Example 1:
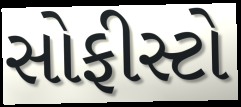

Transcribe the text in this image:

સોફીસ્ટો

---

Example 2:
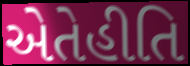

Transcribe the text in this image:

એતેહીતિ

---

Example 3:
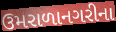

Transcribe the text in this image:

ઉમરાળાનગરીના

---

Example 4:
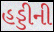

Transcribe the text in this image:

હડ્ડીની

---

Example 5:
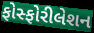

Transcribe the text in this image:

ફોસ્ફોરીલેશન